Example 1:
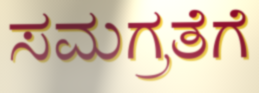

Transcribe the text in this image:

ಸಮಗ್ರತೆಗೆ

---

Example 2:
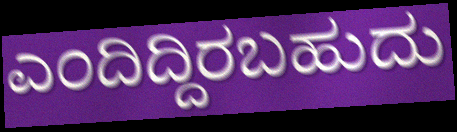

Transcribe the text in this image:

ಎಂದಿದ್ದಿರಬಹುದು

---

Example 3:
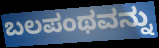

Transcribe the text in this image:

ಬಲಪಂಥವನ್ನು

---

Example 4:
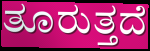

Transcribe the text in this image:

ತೂರುತ್ತದೆ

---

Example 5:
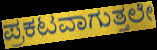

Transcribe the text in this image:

ಪ್ರಕಟವಾಗುತ್ತಲೇ